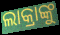
ଲାକ୍ରାଙ୍କୁ